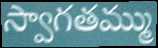
స్వాగతమ్ము